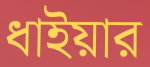
ধাইয়ার